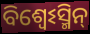
ବିଶ୍ଵେଽସ୍ମିନ୍